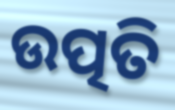
ଉତ୍ପତି